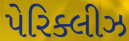
પેરિક્લીઝ